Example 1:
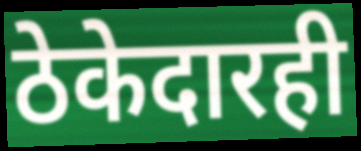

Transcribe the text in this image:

ठेकेदारही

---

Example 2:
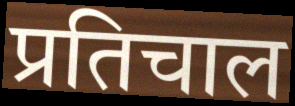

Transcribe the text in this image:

प्रतिचाल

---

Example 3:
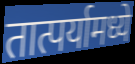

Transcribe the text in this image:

तात्पर्यामध्ये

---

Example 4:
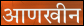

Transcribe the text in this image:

आणखीन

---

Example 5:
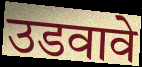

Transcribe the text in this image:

उडवावे